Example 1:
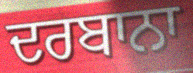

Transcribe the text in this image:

ਦਰਬਾਨਾ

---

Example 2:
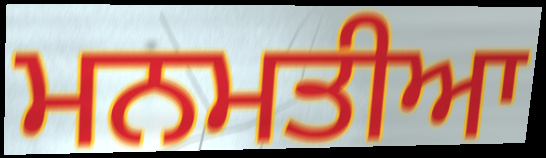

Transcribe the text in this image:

ਮਨਮਤੀਆ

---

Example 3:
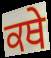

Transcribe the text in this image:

ਕਥੇ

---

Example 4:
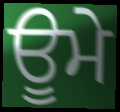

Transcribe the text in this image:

ਊਮੇ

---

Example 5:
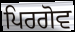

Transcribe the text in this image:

ਪਿਰਗੋਵ